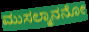
ಮುಸಲ್ಮಾನನೋ